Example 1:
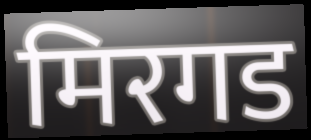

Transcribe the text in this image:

मिरगड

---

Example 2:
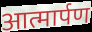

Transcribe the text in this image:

आत्मार्पण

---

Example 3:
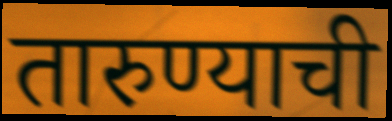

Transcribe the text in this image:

तारुण्याची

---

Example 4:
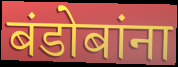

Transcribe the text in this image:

बंडोबांना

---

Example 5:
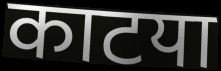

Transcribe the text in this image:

काटया